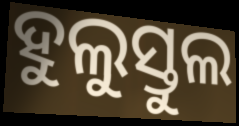
ହୁଲୁସ୍ତୁଲ